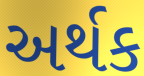
અર્થક